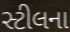
સ્ટીલના